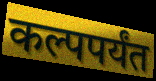
कल्पपर्यंत